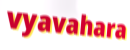
vyavahara